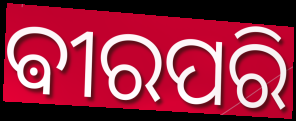
ଵୀରପରି